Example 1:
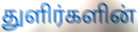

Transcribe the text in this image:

துளிர்களின்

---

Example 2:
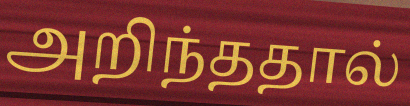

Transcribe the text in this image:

அறிந்ததால்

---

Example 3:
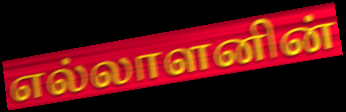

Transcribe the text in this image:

எல்லாளனின்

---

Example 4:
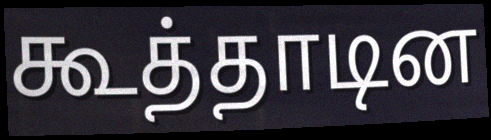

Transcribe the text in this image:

கூத்தாடின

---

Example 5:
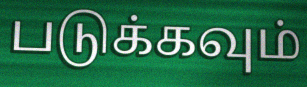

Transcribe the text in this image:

படுக்கவும்